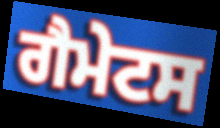
ਗੈਮੇਟਸ